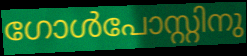
ഗോൾപോസ്റ്റിനു